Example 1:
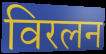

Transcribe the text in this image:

विरलन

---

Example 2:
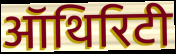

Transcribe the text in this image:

ऑथिरिटी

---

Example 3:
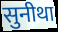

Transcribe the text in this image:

सुनीथा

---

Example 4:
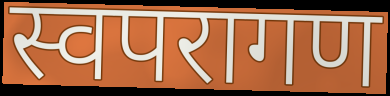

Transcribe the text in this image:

स्वपरागण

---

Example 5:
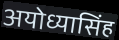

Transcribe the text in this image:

अयोध्यासिंह